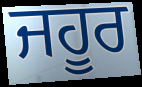
ਜਹੂਰ